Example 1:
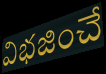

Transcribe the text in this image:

విభజించే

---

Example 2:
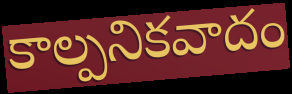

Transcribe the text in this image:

కాల్పనికవాదం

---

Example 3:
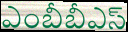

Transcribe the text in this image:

ఎంబీబీఎస్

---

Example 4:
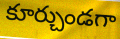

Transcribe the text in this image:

కూర్చుండగా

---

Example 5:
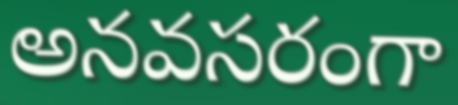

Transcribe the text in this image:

అనవసరంగా